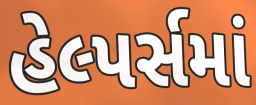
હેલ્પર્સમાં